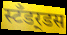
स्टँडर्डस